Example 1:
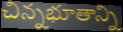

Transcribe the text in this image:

చిన్నభూతాన్ని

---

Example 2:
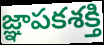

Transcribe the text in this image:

జ్ఞాపకశక్తి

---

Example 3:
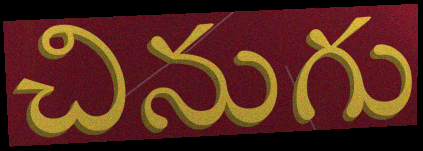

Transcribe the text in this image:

చినుగు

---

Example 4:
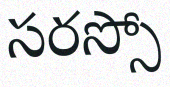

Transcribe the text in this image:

సరస్సో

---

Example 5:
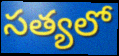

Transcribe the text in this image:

సత్యలో